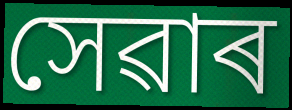
সেৱাৰ